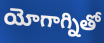
యోగాగ్నితో